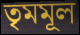
তৃমমূল